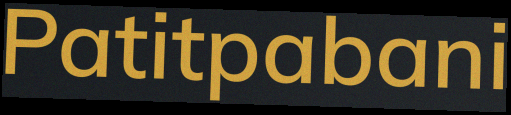
Patitpabani